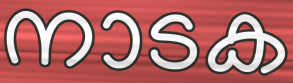
നാടക